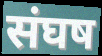
संघष